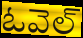
ఓవెల్